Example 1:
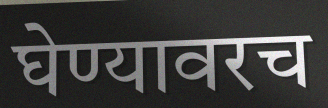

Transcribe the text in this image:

घेण्यावरच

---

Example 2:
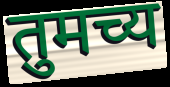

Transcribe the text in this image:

तुमच्य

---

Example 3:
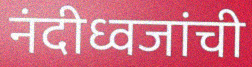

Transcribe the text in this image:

नंदीध्वजांची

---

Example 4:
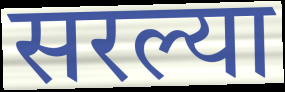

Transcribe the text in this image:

सरल्या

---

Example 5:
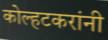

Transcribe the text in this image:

कोल्हटकरांनी